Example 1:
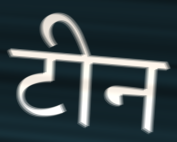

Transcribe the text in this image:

टीन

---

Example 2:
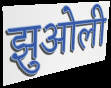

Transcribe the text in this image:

झुओली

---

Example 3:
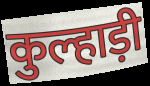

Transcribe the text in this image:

कुल्‍हाड़ी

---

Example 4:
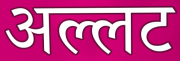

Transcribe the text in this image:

अल्लट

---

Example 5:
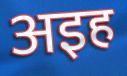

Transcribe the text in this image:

अइह